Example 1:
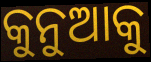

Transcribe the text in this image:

କୁନୁଆକୁ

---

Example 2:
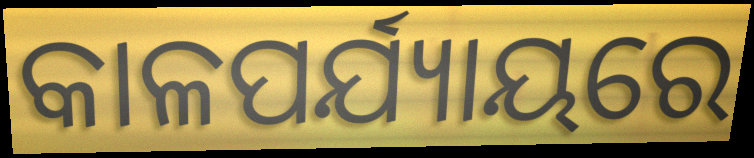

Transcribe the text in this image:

କାଳପର୍ଯ୍ୟାୟରେ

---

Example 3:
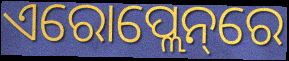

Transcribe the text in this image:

ଏରୋପ୍ଲେନ୍‌ରେ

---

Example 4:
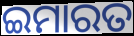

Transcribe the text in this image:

ଇମାରତ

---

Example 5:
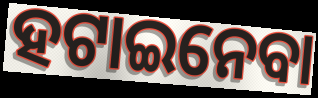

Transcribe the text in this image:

ହଟାଇନେବା